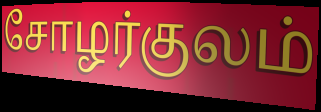
சோழர்குலம்